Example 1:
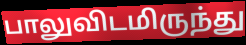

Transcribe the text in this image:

பாலுவிடமிருந்து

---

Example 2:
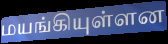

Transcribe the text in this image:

மயங்கியுள்ளன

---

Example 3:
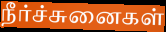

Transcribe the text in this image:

நீர்ச்சுனைகள்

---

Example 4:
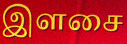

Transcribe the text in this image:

இளசை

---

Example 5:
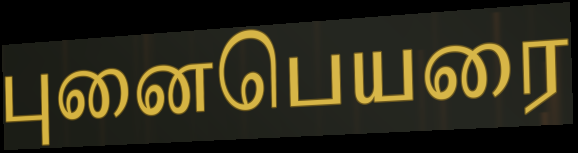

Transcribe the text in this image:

புனைபெயரை